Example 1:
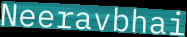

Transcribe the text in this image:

Neeravbhai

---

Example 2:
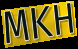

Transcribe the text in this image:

MKH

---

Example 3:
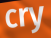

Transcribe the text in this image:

cry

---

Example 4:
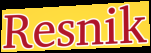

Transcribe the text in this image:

Resnik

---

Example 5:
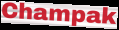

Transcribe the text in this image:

Champak